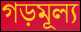
গড়মূল্য